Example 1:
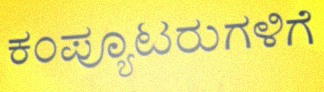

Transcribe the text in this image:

ಕಂಪ್ಯೂಟರುಗಳಿಗೆ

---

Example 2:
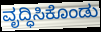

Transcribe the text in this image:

ವೃದ್ಧಿಸಿಕೊಂಡು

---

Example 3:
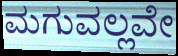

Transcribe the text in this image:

ಮಗುವಲ್ಲವೇ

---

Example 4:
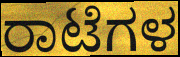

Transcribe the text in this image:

ರಾಟೆಗಳ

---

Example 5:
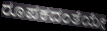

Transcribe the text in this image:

ರೂಪಕದಂತೆಯೇ